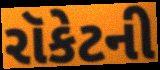
રૉકેટની